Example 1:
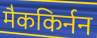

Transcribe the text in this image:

मैककिर्नन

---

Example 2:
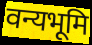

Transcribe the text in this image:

वन्यभूमि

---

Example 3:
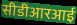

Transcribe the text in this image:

सीडीआरआई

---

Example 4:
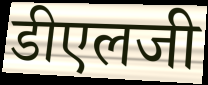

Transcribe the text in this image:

डीएलजी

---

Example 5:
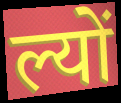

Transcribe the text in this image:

ल्यों